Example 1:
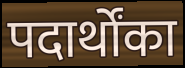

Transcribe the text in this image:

पदार्थोंका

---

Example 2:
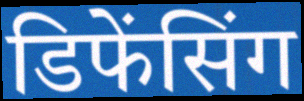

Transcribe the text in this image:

डिफेंसिंग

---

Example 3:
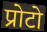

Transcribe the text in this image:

प्रोटो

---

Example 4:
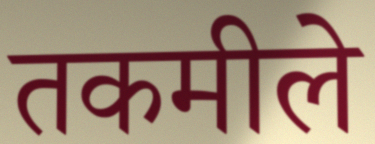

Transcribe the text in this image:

तकमीले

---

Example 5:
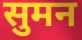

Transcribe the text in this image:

सुमन